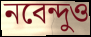
নবেন্দুও